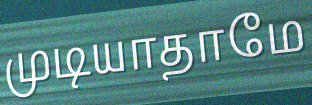
முடியாதாமே